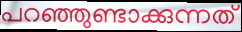
പറഞ്ഞുണ്ടാക്കുന്നത്